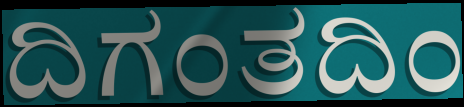
ದಿಗಂತದಿಂ